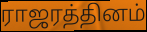
ராஜரத்தினம்